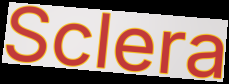
Sclera